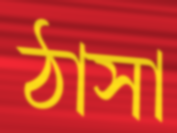
ঠাসা